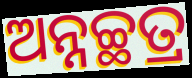
ଅନ୍ନଚ୍ଛତ୍ର